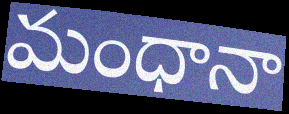
మంధానా